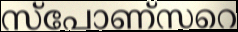
സ്പോണ്സറെ